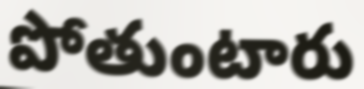
పోతుంటారు